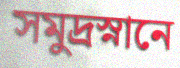
সমুদ্রস্নানে